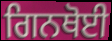
ਗਿਨਥੋਈ